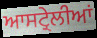
ਆਸਟ੍ਰੇਲੀਆਂ